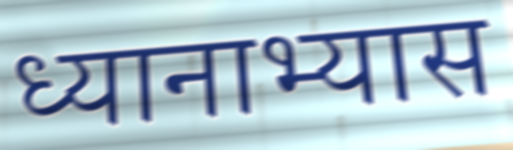
ध्यानाभ्यास